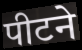
पीटने